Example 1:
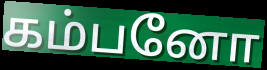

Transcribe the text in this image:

கம்பனோ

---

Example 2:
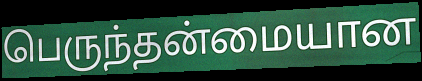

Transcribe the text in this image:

பெருந்தன்மையான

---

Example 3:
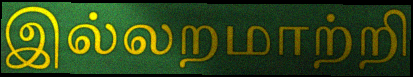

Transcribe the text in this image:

இல்லறமாற்றி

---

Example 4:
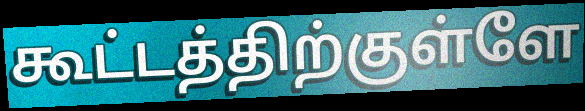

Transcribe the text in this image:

கூட்டத்திற்குள்ளே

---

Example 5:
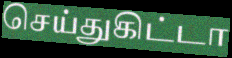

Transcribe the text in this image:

செய்துகிட்டா